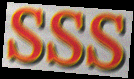
SSS